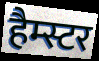
हैम्स्टर